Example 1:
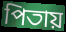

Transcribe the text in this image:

পিতায়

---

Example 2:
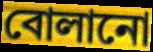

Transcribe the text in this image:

বোলানো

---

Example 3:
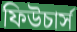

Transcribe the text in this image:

ফিউচার্স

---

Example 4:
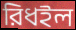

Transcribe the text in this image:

রিধইল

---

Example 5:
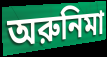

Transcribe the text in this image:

অরুনিমা